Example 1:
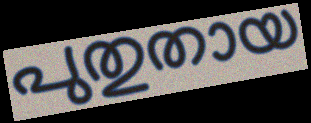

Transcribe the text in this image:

പുതുതായ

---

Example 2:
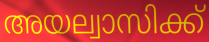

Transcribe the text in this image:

അയല്വാസിക്ക്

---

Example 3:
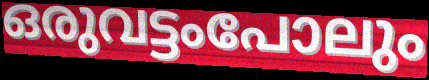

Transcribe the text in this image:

ഒരുവട്ടംപോലും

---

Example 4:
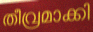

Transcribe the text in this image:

തീവ്രമാക്കി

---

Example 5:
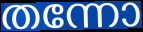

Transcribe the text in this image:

തന്നോ